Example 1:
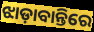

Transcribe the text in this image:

ଝାଡ଼ାବାନ୍ତିରେ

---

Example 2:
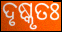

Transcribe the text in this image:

ଦୃଷ୍କୃତଃ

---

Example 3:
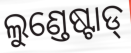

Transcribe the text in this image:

ଲୁଣ୍ଡେଷ୍ଟାଡ୍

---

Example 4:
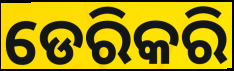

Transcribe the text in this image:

ଡେରିକରି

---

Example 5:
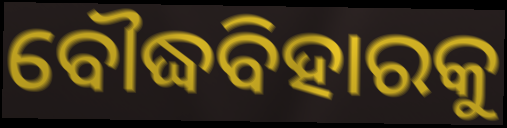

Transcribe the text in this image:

ବୌଦ୍ଧବିହାରକୁ